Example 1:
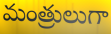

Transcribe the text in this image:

మంత్రులుగా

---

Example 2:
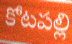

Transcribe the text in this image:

కోటపల్లి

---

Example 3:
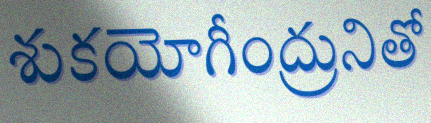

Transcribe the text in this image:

శుకయోగీంద్రునితో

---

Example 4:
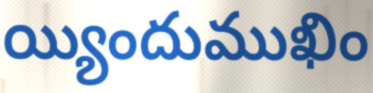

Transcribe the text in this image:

య్యిందుముఖిం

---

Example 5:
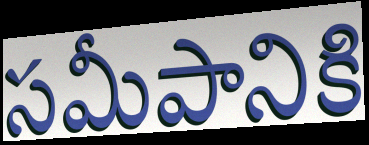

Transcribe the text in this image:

సమీపానికి